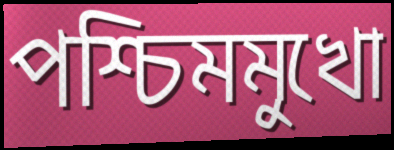
পশ্চিমমুখো